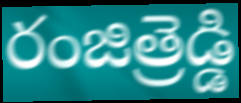
రంజిత్రెడ్డి